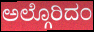
ಅಲ್ಗೊರಿದಂ